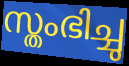
സ്തംഭിച്ചു